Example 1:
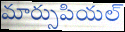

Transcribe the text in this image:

మార్సుపియల్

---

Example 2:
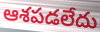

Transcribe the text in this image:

ఆశపడలేదు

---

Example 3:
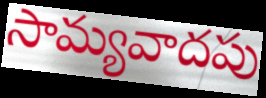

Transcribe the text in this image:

సామ్యవాదపు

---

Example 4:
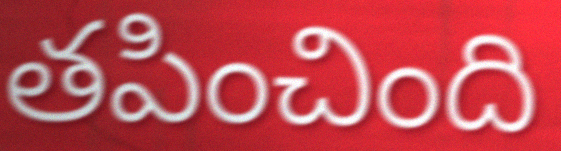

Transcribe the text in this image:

తపించింది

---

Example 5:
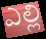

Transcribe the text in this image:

ఎల్లి